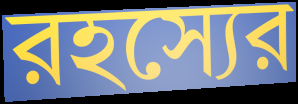
রহস্যের